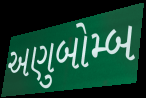
અણુબોમ્બ